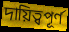
দায়িত্বপূর্ণ